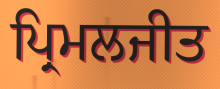
ਪ੍ਰਿਮਲਜੀਤ